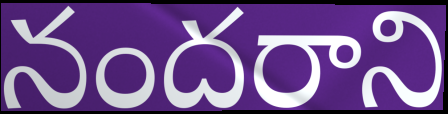
నందరాని